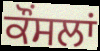
ਕੌਂਸਲਾਂ